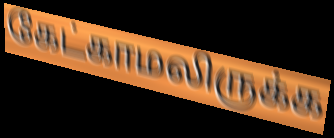
கேட்காமலிருக்க